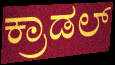
ಕ್ರಾಡಲ್